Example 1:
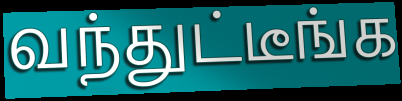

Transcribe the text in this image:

வந்துட்டீங்க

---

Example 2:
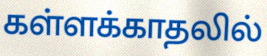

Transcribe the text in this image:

கள்ளக்காதலில்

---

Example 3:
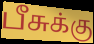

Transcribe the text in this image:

பீசுக்கு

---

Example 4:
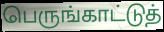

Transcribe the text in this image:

பெருங்காட்டுத்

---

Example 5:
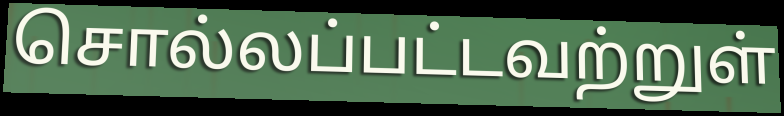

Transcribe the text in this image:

சொல்லப்பட்டவற்றுள்